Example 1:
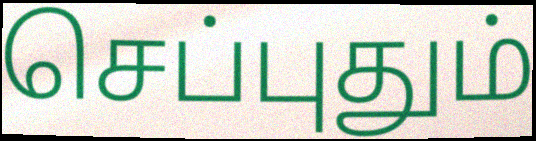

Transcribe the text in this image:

செப்புதும்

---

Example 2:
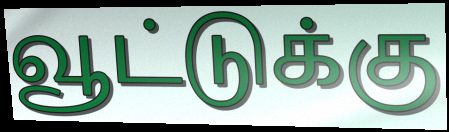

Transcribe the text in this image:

வூட்டுக்கு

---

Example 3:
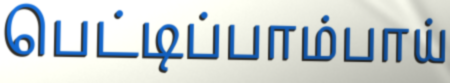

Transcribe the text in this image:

பெட்டிப்பாம்பாய்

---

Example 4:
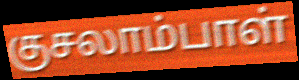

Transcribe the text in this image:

குசலாம்பாள்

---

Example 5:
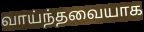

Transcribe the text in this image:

வாய்ந்தவையாக